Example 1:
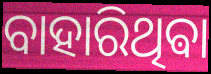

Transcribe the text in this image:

ବାହାରିଥିଵା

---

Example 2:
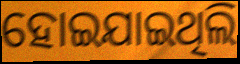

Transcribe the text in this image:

ହୋଇଯାଇଥିଲି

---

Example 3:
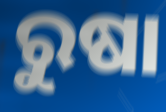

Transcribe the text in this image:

ରୁଷା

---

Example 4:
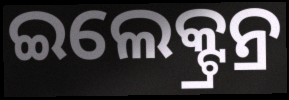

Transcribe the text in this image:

ଇଲେକ୍ଟ୍ରନ୍ର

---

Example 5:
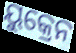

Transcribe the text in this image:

ୟୁକ୍ରେନ